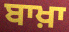
ਬਾਖ਼ਾ